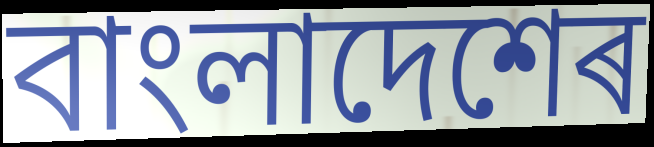
বাংলাদেশেৰ